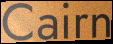
Cairn